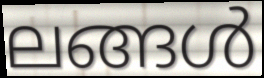
ലങ്ങൾ